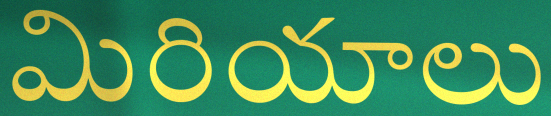
మిరియాలు